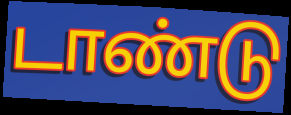
டாண்டு